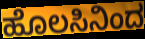
ಹೊಲಸಿನಿಂದ